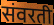
संवरती